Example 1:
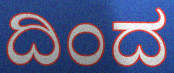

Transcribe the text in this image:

ದಿಂದ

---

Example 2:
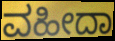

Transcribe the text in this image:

ವಹೀದಾ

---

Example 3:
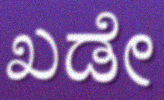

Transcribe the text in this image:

ಖಡೇ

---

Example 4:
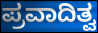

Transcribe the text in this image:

ಪ್ರವಾದಿತ್ವ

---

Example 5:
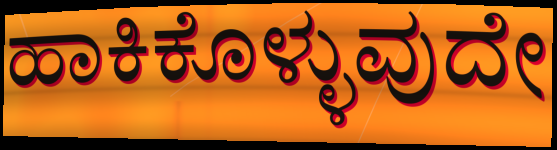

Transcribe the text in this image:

ಹಾಕಿಕೊಳ್ಳುವುದೇ